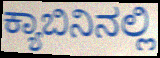
ಕ್ಯಾಬಿನಿನಲ್ಲಿ